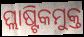
ପ୍ଲାଷ୍ଟିକମୁକ୍ତ